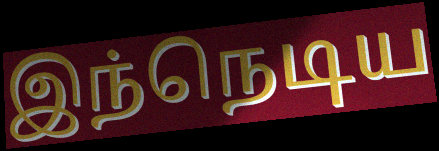
இந்நெடிய